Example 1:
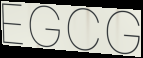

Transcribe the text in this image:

EGCG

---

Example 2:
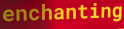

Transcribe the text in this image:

enchanting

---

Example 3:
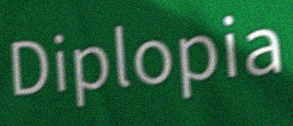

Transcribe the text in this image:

Diplopia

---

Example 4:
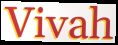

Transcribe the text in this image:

Vivah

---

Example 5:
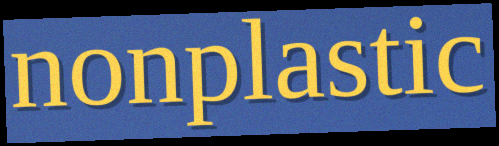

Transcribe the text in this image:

nonplastic